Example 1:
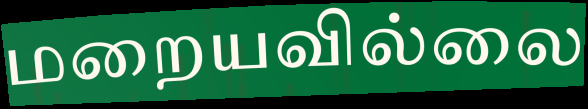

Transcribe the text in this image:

மறையவில்லை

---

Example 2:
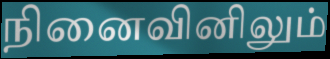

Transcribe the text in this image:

நினைவினிலும்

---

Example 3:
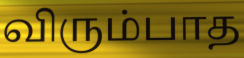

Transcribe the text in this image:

விரும்பாத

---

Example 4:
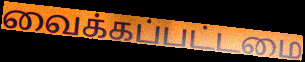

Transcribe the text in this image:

வைக்கப்பட்டமை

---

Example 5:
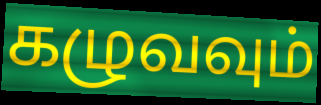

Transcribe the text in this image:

கழுவவும்